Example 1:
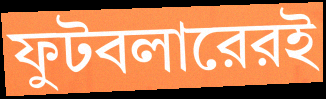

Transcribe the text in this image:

ফুটবলারেরই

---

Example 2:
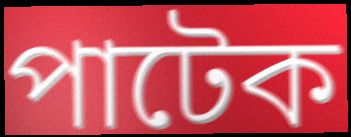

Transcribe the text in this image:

পাটেক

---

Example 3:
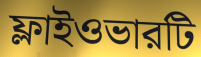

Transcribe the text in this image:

ফ্লাইওভারটি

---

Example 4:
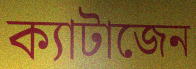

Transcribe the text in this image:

ক্যাটাজেন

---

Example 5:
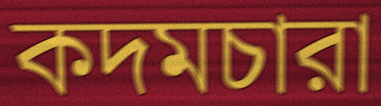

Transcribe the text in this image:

কদমচারা